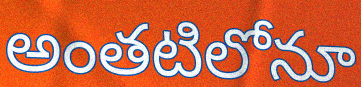
అంతటిలోనూ